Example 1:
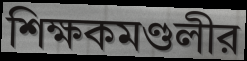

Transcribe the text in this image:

শিক্ষকমণ্ডলীর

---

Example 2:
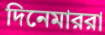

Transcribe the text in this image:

দিনেমাররা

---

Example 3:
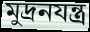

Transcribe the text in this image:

মুদ্রনযন্ত্র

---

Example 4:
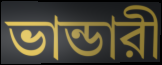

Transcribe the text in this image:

ভান্ডারী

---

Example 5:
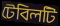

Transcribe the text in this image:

টেবিলটি